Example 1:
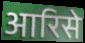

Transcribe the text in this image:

आरिसे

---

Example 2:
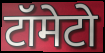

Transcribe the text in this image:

टॉमेटो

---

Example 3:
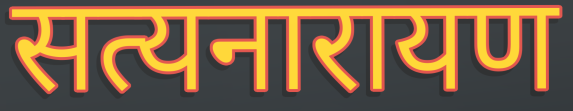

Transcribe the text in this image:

सत्यनारायण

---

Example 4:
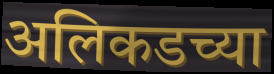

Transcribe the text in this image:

अलिकडच्या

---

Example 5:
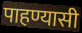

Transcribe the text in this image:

पाहण्यासी